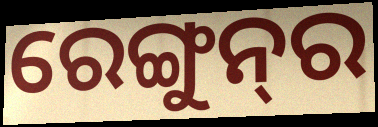
ରେଙ୍ଗୁନ୍‌ର